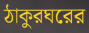
ঠাকুরঘরের